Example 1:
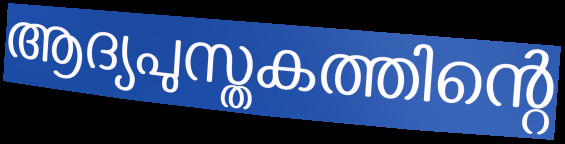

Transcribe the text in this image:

ആദ്യപുസ്തകത്തിന്റെ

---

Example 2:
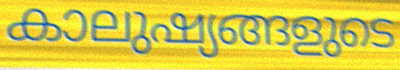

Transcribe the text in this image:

കാലുഷ്യങ്ങളുടെ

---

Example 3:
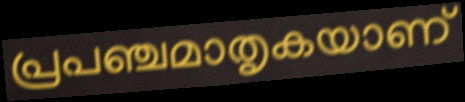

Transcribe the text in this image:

പ്രപഞ്ചമാതൃകയാണ്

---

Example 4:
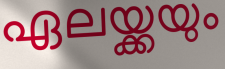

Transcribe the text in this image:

ഏലയ്ക്കയും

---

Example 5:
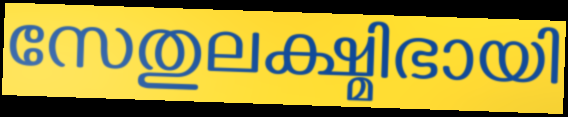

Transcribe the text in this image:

സേതുലക്ഷ്മിഭായി